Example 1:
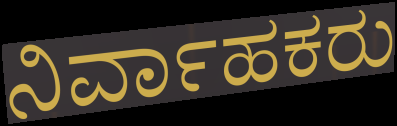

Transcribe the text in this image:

ನಿರ್ವಾಹಕರು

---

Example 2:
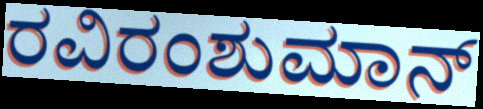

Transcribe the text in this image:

ರವಿರಂಶುಮಾನ್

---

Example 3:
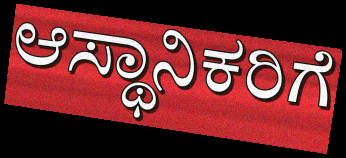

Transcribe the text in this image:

ಆಸ್ಥಾನಿಕರಿಗೆ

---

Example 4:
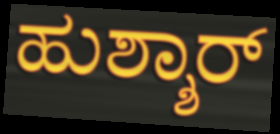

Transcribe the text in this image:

ಹುಶ್ಶಾರ್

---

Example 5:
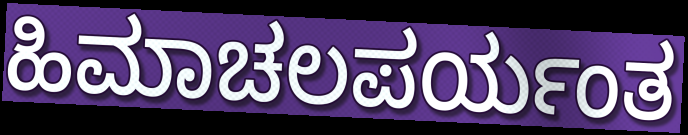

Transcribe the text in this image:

ಹಿಮಾಚಲಪರ್ಯಂತ